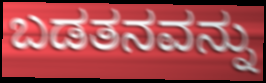
ಬಡತನವನ್ನು